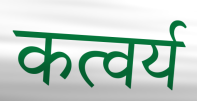
कत्वर्य